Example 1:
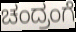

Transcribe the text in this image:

ಚಂದ್ರಂಗೆ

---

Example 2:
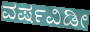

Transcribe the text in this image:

ವರ್ಷವಿಡೀ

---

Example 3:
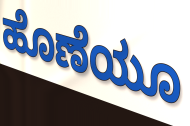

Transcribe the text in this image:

ಹೊಣೆಯೂ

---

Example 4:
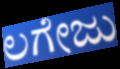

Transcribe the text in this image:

ಲಗೇಜು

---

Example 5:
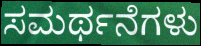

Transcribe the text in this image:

ಸಮರ್ಥನೆಗಳು